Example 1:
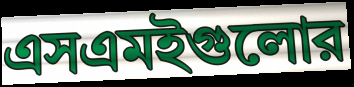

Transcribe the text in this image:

এসএমইগুলোর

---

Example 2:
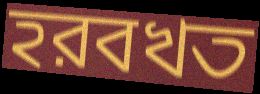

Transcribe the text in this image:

হরবখত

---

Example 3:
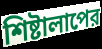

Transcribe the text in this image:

শিষ্টালাপের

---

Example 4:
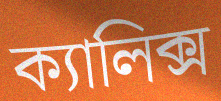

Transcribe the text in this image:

ক্যালিক্স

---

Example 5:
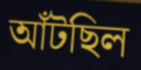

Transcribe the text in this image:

আঁটছিল